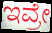
ಇವ್ರೇ